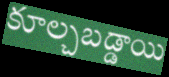
కూల్చబడ్డాయి